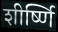
शीर्ष्णि